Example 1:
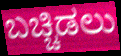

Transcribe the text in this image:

ಬಚ್ಚಿಡಲು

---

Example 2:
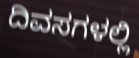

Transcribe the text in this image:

ದಿವಸಗಳಲ್ಲಿ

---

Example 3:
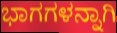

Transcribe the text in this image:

ಭಾಗಗಳನ್ನಾಗಿ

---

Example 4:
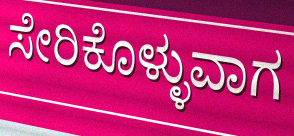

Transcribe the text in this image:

ಸೇರಿಕೊಳ್ಳುವಾಗ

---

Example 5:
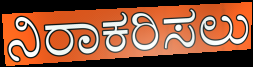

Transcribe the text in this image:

ನಿರಾಕರಿಸಲು